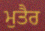
ਮੁਤੈਰ